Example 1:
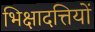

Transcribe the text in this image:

भिक्षादत्तियों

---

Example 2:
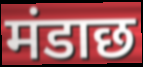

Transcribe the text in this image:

मंडाछ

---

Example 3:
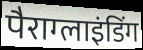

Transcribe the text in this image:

पैराग्लाइंडिंग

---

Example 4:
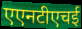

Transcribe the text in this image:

एएनटीएचई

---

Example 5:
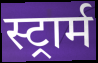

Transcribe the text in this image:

स्ट्रार्म